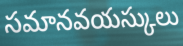
సమానవయస్కులు